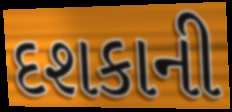
દશકાની